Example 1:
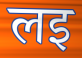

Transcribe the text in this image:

लइ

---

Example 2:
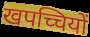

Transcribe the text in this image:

खपच्चियों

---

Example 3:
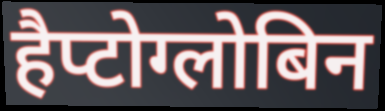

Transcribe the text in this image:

हैप्टोग्लोबिन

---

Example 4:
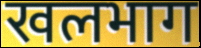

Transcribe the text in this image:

खलभाग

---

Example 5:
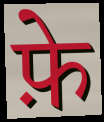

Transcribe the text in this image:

फ़े